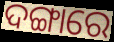
ଦଙ୍ଗାରେ